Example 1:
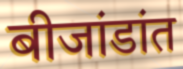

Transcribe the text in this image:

बीजांडांत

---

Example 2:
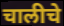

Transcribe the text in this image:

चालीचे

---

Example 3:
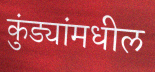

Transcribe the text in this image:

कुंड्यांमधील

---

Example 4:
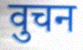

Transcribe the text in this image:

वुचन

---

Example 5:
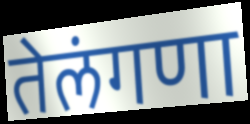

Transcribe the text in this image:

तेलंगणा